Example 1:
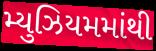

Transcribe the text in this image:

મ્યુઝિયમમાંથી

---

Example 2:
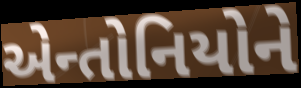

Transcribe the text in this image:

એન્તોનિયોને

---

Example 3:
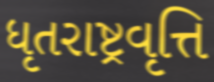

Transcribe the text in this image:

ધૃતરાષ્ટ્રવૃત્તિ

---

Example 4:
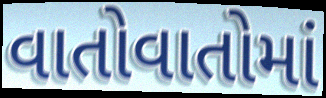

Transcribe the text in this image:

વાતોવાતોમાં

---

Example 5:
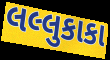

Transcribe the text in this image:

લલ્લુકાકા